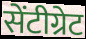
सेंटीग्रेट